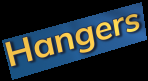
Hangers